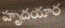
హృదయార